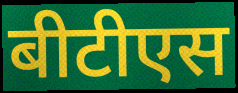
बीटीएस